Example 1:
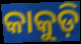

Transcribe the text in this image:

କାକୁଡ଼ି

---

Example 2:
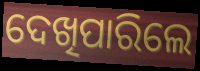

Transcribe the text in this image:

ଦେଖିପାରିଲେ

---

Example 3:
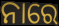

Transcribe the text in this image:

ନାରେ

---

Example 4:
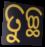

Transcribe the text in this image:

ତୁଚ୍ଛ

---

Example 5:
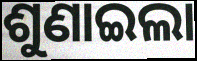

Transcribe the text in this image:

ଶୁଣାଇଲା